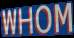
WHOM